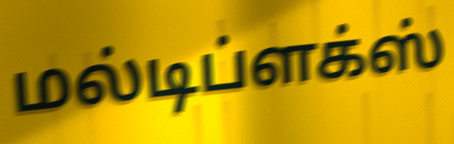
மல்டிப்ளக்ஸ்